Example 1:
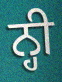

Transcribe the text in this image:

ਨ੍ਹੀ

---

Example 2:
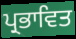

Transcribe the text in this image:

ਪ੍ਰਭਾਵਿਤ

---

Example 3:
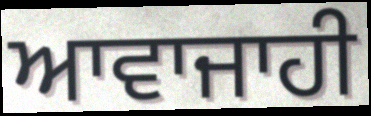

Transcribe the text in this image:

ਆਵਾਜਾਹੀ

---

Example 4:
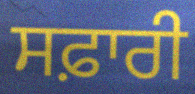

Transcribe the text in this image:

ਸਫ਼ਾਰੀ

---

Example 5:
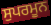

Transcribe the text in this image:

ਸੁਪਰਮੂਨ